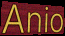
Anio